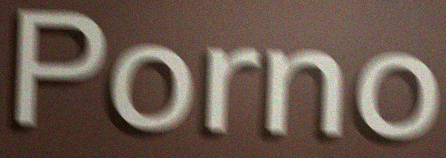
Porno